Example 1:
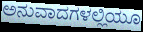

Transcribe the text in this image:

ಅನುವಾದಗಳಲ್ಲಿಯೂ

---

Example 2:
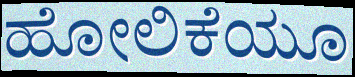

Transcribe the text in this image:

ಹೋಲಿಕೆಯೂ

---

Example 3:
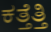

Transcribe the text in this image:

ಕತ್ತೆತ್ತಿ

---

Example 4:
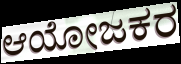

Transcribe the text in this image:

ಆಯೋಜಕರ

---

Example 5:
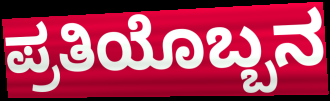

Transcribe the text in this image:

ಪ್ರತಿಯೊಬ್ಬನ